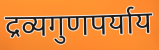
द्रव्यगुणपर्याय